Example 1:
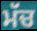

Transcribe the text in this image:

ਮੱਚ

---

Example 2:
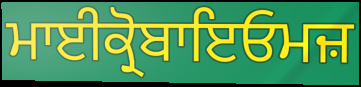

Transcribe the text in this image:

ਮਾਈਕ੍ਰੋਬਾਇਓਮਜ਼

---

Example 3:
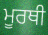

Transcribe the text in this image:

ਮੂਰਥੀ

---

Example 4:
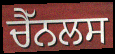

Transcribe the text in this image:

ਚੈੱਨਲਸ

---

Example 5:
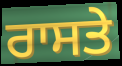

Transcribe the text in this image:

ਰਾਸਤੇ